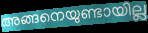
അങ്ങനെയുണ്ടായില്ല